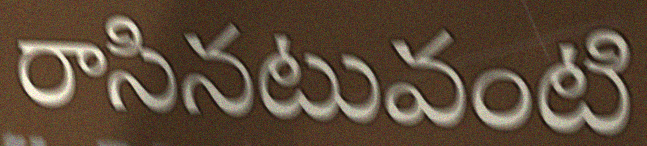
రాసినటువంటి